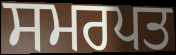
ਸਮਰਪਤ